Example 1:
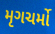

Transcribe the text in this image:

મૃગચર્મો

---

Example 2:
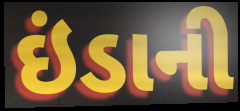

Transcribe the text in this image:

ઇંડાની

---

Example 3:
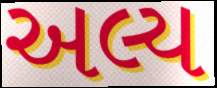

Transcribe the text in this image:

અલ્ય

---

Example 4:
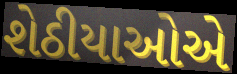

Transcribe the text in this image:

શેઠીયાઓએ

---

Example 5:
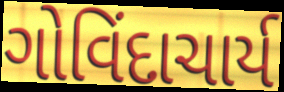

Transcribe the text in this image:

ગોવિંદાચાર્ય